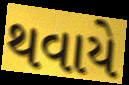
થવાયે